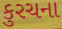
કુરચના